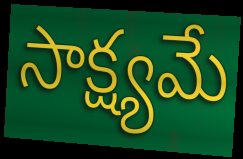
సాక్ష్యమే